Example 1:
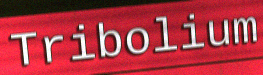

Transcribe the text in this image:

Tribolium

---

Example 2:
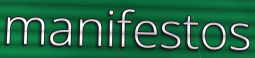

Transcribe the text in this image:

manifestos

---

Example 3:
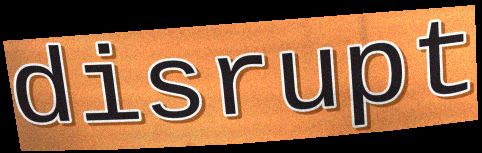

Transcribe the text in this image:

disrupt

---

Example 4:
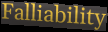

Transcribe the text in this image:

Falliability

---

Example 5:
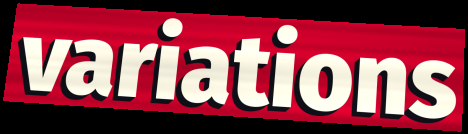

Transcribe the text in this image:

variations